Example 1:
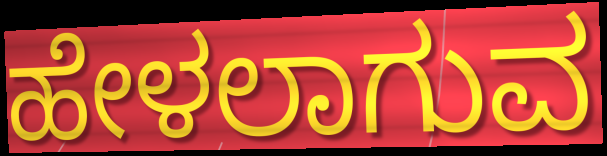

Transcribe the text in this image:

ಹೇಳಲಾಗುವ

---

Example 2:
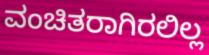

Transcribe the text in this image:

ವಂಚಿತರಾಗಿರಲಿಲ್ಲ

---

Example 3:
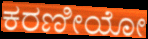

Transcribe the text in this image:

ಕರಣೀಯೋ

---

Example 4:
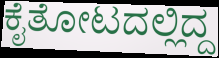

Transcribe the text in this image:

ಕೈತೋಟದಲ್ಲಿದ್ದ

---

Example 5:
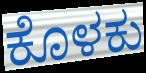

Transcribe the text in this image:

ಕೊಳಕು